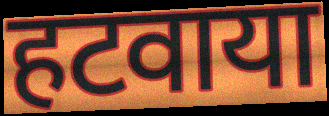
हटवाया